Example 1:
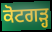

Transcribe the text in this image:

ਕੋਟਗੜ੍ਹ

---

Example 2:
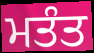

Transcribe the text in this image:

ਮਤੰਤ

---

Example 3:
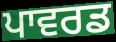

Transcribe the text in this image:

ਪਾਵਰਡ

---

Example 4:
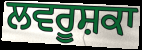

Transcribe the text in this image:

ਲਵਰੂਸ਼ਕਾ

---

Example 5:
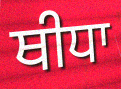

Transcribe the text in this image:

ਥੀਧਾ